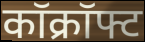
कॉक्रॉफ्ट